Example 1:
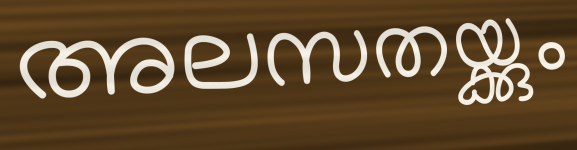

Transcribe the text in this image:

അലസതയ്ക്കും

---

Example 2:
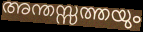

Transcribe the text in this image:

അന്തസ്സത്തയും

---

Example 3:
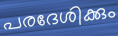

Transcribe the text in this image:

പരദേശിക്കും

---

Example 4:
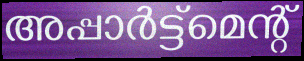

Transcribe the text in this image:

അപ്പാർട്ട്മെന്റ്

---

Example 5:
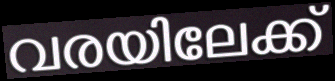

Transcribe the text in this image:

വരയിലേക്ക്